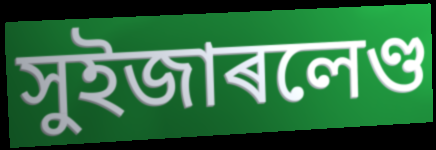
সুইজাৰলেণ্ড